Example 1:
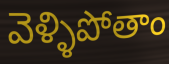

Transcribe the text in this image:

వెళ్ళిపోతాం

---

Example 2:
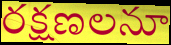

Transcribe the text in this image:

రక్షణలనూ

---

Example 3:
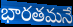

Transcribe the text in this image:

భారతమనే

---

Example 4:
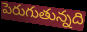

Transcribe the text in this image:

పెరుగుతున్నది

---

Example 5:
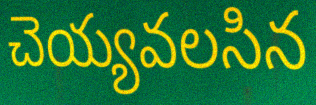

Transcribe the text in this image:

చెయ్యవలసిన